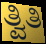
ತ್ವಿತಿ